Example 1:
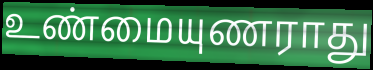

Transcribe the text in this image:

உண்மையுணராது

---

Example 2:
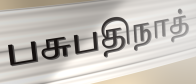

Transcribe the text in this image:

பசுபதிநாத்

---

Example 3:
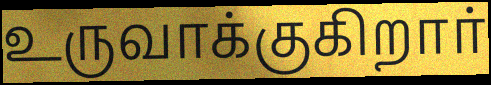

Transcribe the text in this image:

உருவாக்குகிறார்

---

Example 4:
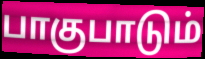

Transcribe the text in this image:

பாகுபாடும்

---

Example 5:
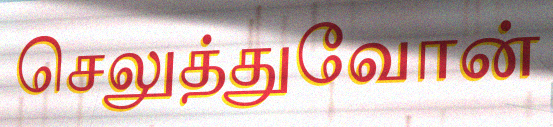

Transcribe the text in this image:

செலுத்துவோன்